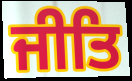
ਜੀਤਿ